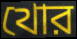
থোর